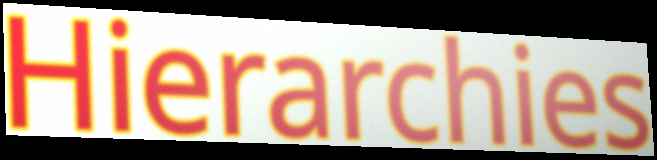
Hierarchies